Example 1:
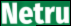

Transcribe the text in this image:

Netru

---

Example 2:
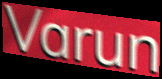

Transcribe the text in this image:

Varun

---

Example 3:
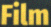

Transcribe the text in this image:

Film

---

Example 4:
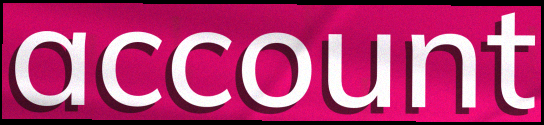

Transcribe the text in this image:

account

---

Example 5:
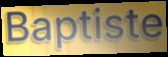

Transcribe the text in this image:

Baptiste